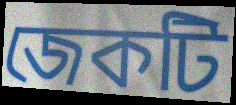
জেকটি